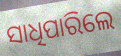
ସାଧିପାରିଲେ